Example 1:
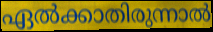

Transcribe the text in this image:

ഏൽക്കാതിരുന്നാൽ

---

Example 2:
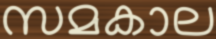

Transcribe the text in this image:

സമകാല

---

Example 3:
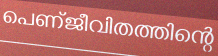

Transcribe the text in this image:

പെണ്ജീവിതത്തിന്റെ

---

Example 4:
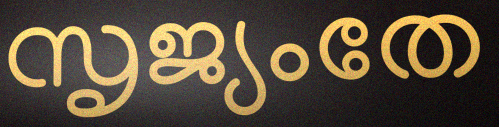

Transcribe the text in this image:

സൃജ്യംതേ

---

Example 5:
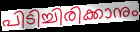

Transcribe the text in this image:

പിടിച്ചിരിക്കാനും